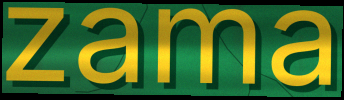
zama